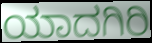
ಯಾದಗಿರಿ